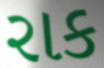
રાક